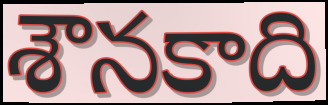
శౌనకాది